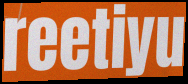
reetiyu